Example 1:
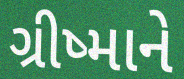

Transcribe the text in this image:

ગ્રીષ્માને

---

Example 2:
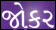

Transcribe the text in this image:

જોકર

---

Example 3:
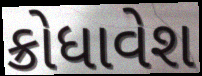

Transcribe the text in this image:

ક્રોધાવેશ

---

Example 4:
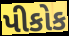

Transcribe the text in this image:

પીકોક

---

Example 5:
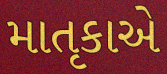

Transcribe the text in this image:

માતૃકાએ